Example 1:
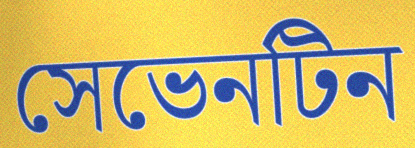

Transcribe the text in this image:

সেভেনটিন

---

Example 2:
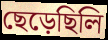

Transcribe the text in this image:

ছেড়েছিলি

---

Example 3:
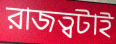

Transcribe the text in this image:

রাজত্বটাই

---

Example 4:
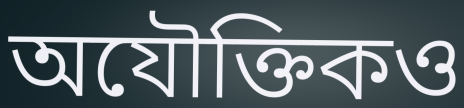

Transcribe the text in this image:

অযৌক্তিকও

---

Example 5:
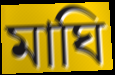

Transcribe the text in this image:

মাঘি